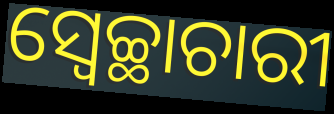
ସ୍ଵେଚ୍ଛାଚାରୀ